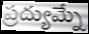
ప్రద్యుమ్నే